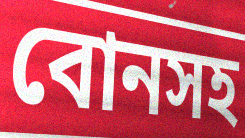
বোনসহ